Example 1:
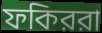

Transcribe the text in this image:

ফকিররা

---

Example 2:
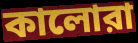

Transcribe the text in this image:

কালোরা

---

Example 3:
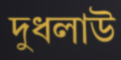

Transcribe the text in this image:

দুধলাউ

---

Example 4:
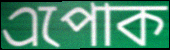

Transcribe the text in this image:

এপোক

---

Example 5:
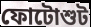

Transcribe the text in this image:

ফোটোশুট